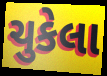
ચુકેલા